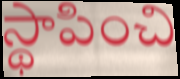
స్థాపించి